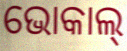
ଭୋକାଲ୍